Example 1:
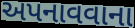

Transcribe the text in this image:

અપનાવવાના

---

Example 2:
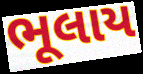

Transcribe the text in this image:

ભૂલાય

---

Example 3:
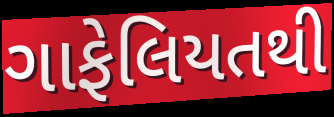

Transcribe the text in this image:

ગાફેલિયતથી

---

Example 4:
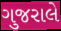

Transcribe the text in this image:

ગુજરાલે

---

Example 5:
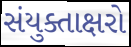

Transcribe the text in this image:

સંયુક્તાક્ષરો